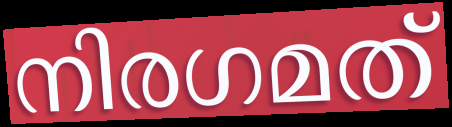
നിരഗമത്